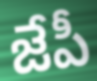
జేపీ